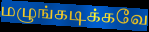
மழுங்கடிக்கவே